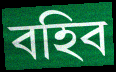
বহিব